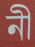
নী